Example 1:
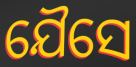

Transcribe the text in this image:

ଯୈସେ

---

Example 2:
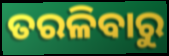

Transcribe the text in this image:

ତରଳିବାରୁ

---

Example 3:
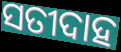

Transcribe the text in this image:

ସତୀଦାହ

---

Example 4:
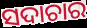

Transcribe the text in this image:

ସଦାଚାର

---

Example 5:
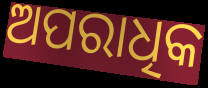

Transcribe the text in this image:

ଅପରାଧିକ